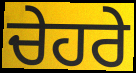
ਚੇਹਰੇ